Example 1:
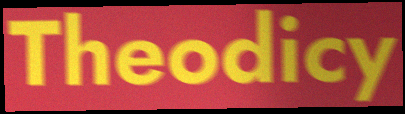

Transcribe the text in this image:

Theodicy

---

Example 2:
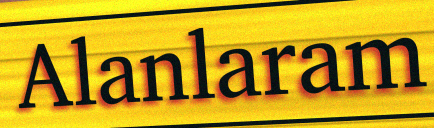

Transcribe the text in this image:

Alanlaram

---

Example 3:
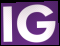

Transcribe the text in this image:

IG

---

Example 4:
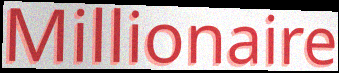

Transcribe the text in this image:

Millionaire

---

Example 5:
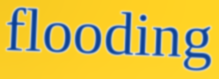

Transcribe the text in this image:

flooding